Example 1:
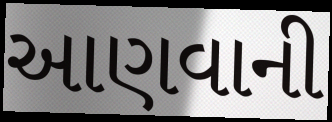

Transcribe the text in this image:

આણવાની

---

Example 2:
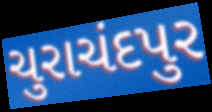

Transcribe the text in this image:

ચુરાચંદપુર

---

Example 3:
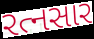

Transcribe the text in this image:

રત્નસાર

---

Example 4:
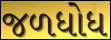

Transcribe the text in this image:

જળધોધ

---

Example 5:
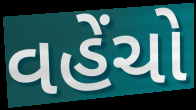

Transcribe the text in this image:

વહેંચો